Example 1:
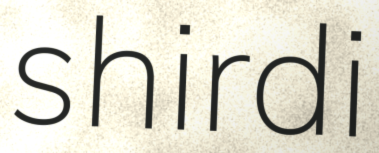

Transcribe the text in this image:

shirdi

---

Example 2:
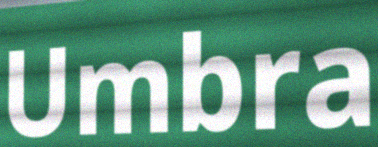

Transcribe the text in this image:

Umbra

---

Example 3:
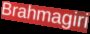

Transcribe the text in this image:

Brahmagiri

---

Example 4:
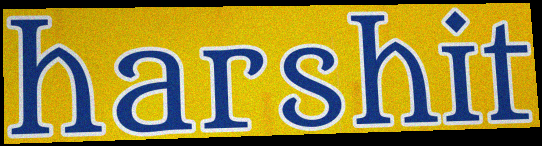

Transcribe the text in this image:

harshit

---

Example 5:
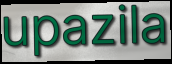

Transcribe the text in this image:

upazila